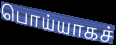
பொய்யாகச்